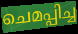
ചെമപ്പിച്ച